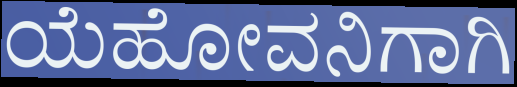
ಯೆಹೋವನಿಗಾಗಿ